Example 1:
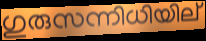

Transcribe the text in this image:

ഗുരുസന്നിധിയില്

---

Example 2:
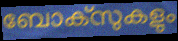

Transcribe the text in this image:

ബോക്സുകളും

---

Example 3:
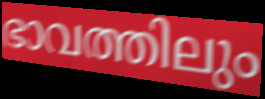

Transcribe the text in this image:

ഭാവത്തിലും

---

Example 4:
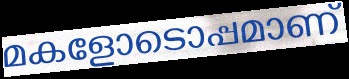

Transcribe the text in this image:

മകളോടൊപ്പമാണ്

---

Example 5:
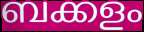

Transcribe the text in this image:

ബക്കളം